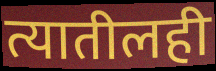
त्यातीलही